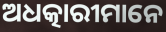
ଅଧତ୍କାରୀମାନେ